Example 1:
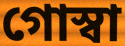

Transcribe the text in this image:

গোস্বা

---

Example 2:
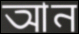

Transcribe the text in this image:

আন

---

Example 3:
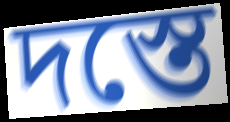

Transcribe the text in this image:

দস্তে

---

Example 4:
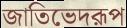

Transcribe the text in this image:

জাতিভেদরূপ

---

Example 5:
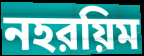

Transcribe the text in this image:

নহরয়িম